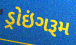
ડ્રોઇંગરૂમ